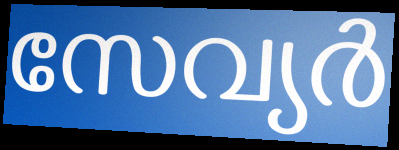
സേവ്യർ